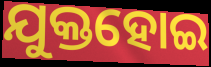
ଯୁକ୍ତହୋଇ